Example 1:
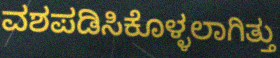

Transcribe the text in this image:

ವಶಪಡಿಸಿಕೊಳ್ಳಲಾಗಿತ್ತು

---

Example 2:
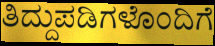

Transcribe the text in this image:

ತಿದ್ದುಪಡಿಗಳೊಂದಿಗೆ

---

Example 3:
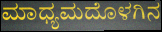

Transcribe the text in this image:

ಮಾಧ್ಯಮದೊಳಗಿನ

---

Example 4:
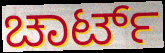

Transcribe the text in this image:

ಚಾರ್ಟ್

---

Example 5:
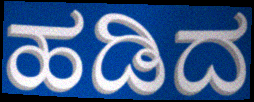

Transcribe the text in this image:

ಹಡಿದ